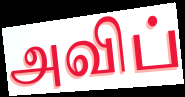
அவிப்